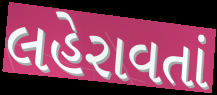
લહેરાવતાં